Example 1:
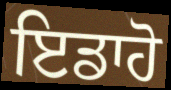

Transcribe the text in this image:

ਇਡਾਹੋ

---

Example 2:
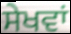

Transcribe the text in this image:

ਸੇਖਵਾਂ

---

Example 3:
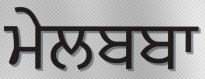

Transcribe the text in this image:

ਮੇਲਬਬਾ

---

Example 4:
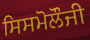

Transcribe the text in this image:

ਸਿਸਮੋਲੌਜੀ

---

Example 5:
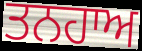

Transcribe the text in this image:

ਤਨਹਾਅ